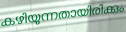
കഴിയുന്നതായിരിക്കും